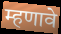
म्हणावे